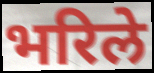
भरिले